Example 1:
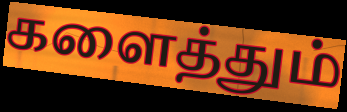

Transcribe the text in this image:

களைத்தும்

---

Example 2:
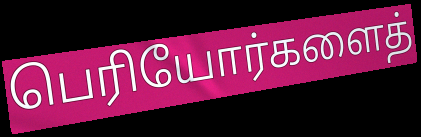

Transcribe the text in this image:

பெரியோர்களைத்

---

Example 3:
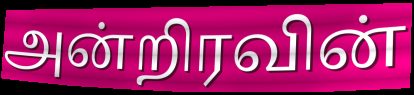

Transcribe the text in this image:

அன்றிரவின்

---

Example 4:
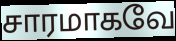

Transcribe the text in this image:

சாரமாகவே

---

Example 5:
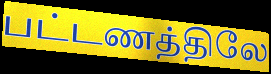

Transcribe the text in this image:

பட்டணத்திலே